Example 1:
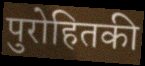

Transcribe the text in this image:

पुरोहितकी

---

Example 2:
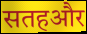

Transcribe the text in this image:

सतहऔर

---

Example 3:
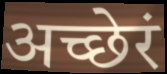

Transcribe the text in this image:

अच्छेरं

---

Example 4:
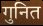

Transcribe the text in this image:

गुनित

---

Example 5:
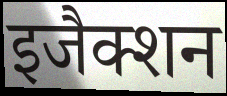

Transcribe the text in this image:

इजैक्शन